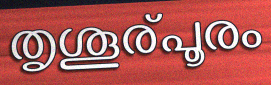
തൃശൂര്പൂരം